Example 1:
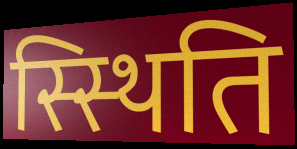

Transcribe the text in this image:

स्स्थिति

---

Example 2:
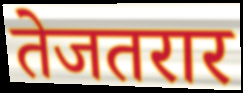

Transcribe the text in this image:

तेजतरार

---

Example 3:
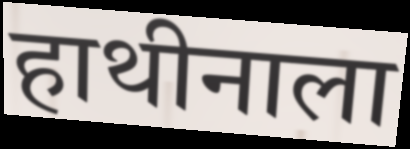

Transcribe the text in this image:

हाथीनाला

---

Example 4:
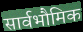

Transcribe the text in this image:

सार्वभौमिक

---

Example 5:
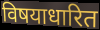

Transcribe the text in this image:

विषयाधारित